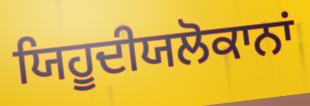
ਯਿਹੂਦੀਯਲੋਕਾਨਾਂ